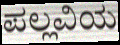
ಪಲ್ಲವಿಯ